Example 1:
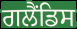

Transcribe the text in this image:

ਗਲੈਂਡਿਸ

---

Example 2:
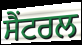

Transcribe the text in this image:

ਸੈਂਟਰਲ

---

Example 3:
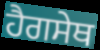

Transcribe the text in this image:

ਹੈਗਸੇਥ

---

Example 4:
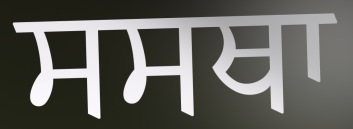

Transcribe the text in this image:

ਸਸਥਾ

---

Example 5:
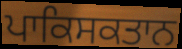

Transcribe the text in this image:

ਪਾਕਿਸਕਤਾਨ